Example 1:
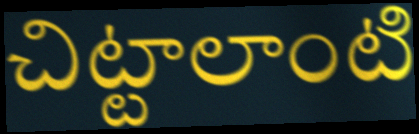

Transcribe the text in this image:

చిట్టాలాంటి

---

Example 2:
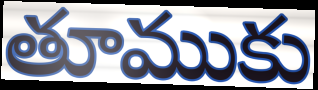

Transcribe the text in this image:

తూముకు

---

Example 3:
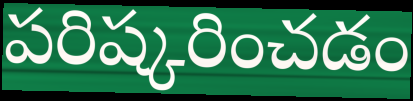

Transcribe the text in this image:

పరిష్కరించడం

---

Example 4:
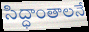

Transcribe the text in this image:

సిద్ధాంతాలనే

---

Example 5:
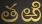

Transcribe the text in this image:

తఱి